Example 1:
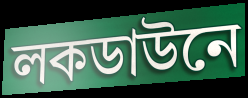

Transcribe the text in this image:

লকডাউনে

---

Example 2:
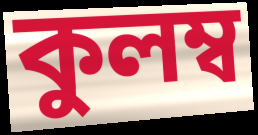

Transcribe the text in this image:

কুলম্ব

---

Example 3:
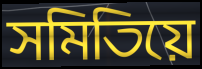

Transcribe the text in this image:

সমিতিয়ে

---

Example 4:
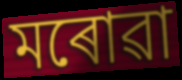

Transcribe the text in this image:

মৰোৱা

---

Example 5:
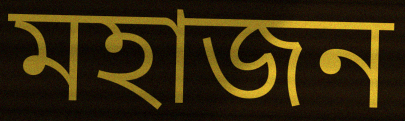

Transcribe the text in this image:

মহাজন